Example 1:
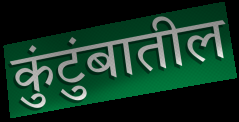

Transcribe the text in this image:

कुंटुंबातील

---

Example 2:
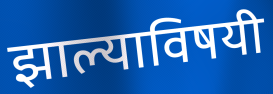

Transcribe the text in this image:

झाल्याविषयी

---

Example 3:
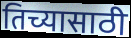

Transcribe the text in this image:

तिच्यासाठी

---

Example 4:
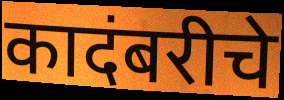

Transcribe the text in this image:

कादंबरीचे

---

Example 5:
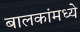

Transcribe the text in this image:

बालकांमध्ये